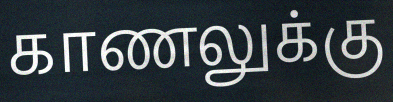
காணலுக்கு